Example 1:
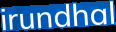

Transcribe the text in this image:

irundhal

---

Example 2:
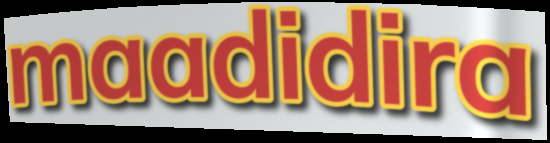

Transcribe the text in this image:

maadidira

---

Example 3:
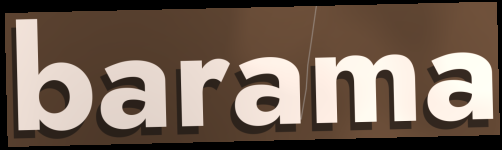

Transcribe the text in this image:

barama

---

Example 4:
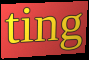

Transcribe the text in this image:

ting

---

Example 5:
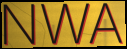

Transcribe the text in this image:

NWA